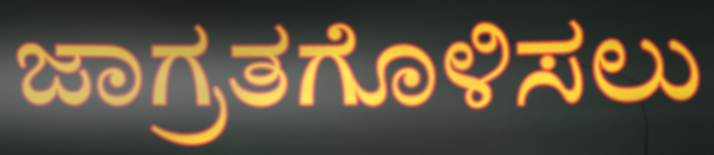
ಜಾಗ್ರತಗೊಳಿಸಲು